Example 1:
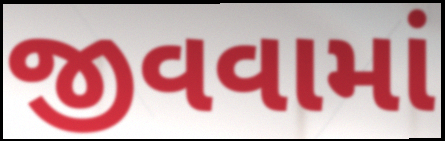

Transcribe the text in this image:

જીવવામાં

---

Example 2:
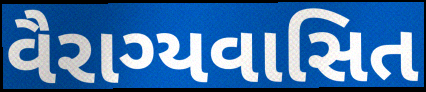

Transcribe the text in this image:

વૈરાગ્યવાસિત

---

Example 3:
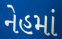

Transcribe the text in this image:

નેહમાં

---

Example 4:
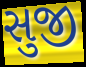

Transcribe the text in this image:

સુજી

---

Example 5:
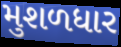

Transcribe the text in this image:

મુશળધાર